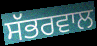
ਸੱਭਰਵਾਲ